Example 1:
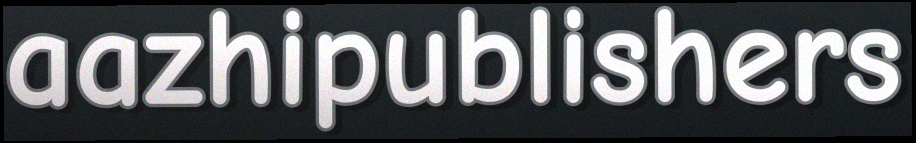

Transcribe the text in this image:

aazhipublishers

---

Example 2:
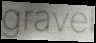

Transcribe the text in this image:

gravel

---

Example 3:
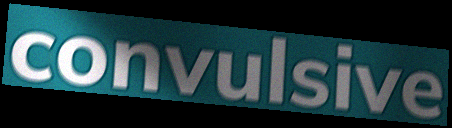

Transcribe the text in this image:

convulsive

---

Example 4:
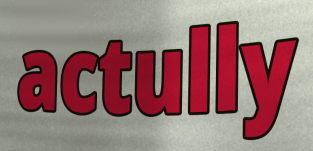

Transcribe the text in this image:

actully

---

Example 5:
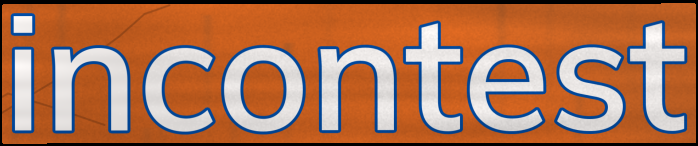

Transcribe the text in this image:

incontest